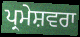
ਪ੍ਰਮੇਸ਼ਵਰਾ